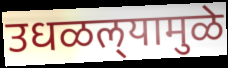
उधळल्यामुळे